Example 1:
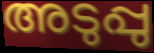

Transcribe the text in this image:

അടുപ്പു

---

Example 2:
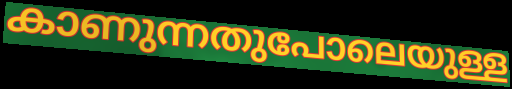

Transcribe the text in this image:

കാണുന്നതുപോലെയുള്ള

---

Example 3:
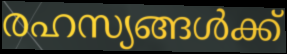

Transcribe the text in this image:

രഹസ്യങ്ങൾക്ക്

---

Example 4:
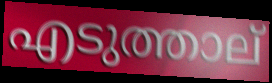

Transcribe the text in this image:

എടുത്താല്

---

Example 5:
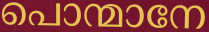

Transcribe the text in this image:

പൊന്മാനേ